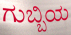
ಗುಬ್ಬಿಯ